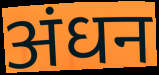
अंधन